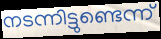
നടന്നിട്ടുണ്ടെന്ന്